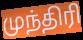
முந்திரி